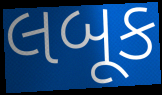
લબૂક